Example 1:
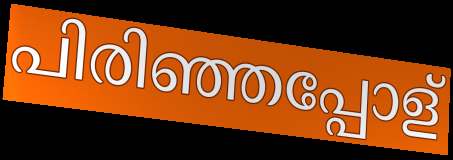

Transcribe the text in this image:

പിരിഞ്ഞപ്പോള്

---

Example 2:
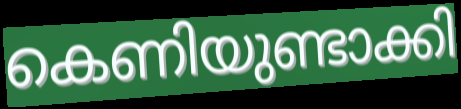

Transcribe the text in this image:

കെണിയുണ്ടാക്കി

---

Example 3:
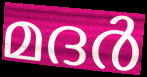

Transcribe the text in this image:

മദർ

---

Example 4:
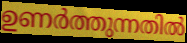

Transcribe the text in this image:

ഉണർത്തുന്നതിൽ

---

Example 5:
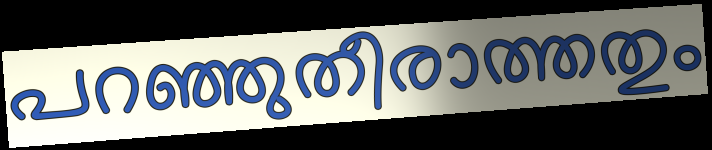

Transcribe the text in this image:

പറഞ്ഞുതീരാത്തതും